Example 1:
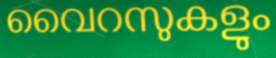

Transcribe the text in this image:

വൈറസുകളും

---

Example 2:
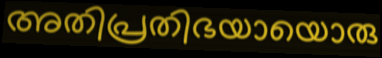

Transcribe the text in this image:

അതിപ്രതിഭയായൊരു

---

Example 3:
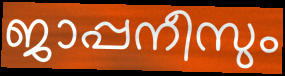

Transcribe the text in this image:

ജാപ്പനീസും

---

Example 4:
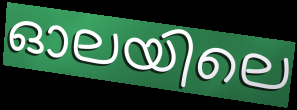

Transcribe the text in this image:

ഓലയിലെ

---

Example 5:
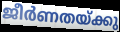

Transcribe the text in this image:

ജീർണതയ്ക്കു